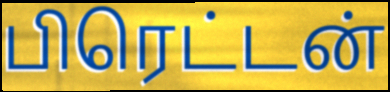
பிரெட்டன்